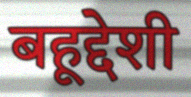
बहूद्देशी